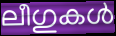
ലീഗുകൾ